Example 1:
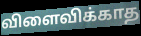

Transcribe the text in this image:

விளைவிக்காத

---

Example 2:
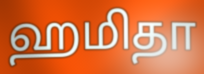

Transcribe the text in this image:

ஹமிதா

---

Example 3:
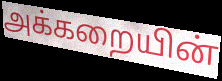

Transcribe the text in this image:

அக்கறையின்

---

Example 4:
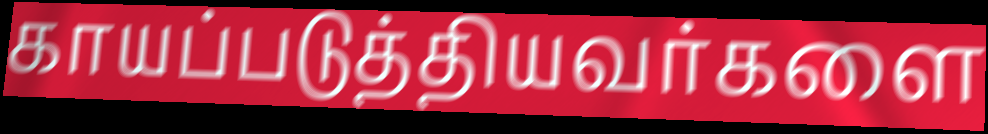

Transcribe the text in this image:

காயப்படுத்தியவர்களை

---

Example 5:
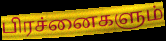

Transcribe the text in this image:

பிரச்னைகளும்